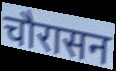
चौरासन